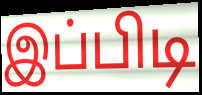
இப்பிடி